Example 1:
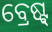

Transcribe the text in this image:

ବ୍ରେଷ୍ଟ୍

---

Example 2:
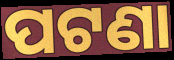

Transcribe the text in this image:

ପଟଣା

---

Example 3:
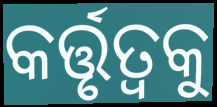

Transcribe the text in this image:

କର୍ତ୍ତୃତ୍ୱକୁ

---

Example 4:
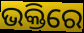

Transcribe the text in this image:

ଭକ୍ତିରେ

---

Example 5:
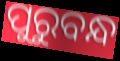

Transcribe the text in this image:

ପୁରୁବନ୍ଧ